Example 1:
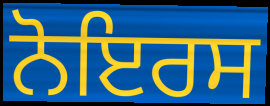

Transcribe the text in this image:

ਨੋਇਰਸ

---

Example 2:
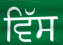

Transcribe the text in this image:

ਵਿੱਸ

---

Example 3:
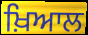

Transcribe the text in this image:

ਖ਼ਿਆਲ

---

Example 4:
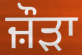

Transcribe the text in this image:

ਜ਼ੌੜਾ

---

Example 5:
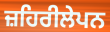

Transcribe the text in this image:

ਜ਼ਹਿਰੀਲੇਪਨ